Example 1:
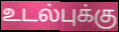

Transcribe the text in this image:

உடல்புக்கு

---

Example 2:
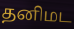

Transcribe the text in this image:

தனிமட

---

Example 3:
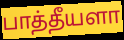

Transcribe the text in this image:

பாத்தீயளா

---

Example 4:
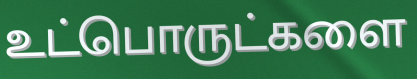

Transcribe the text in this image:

உட்பொருட்களை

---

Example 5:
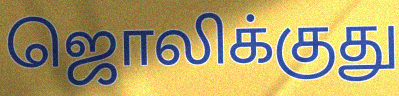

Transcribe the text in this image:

ஜொலிக்குது